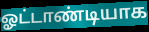
ஓட்டாண்டியாக